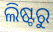
ଲିଷ୍ଟରୁ